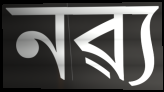
নৱ্য